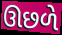
ઊછળે